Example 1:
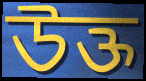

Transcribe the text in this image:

উক্ত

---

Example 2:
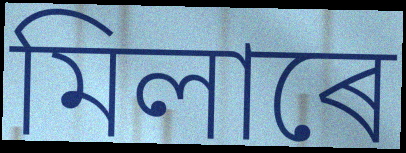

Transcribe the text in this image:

মিলাৰে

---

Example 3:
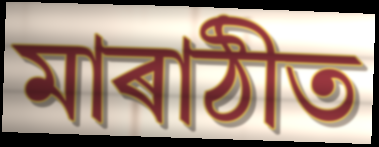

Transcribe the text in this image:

মাৰাঠীত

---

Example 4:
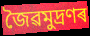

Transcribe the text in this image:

জৈৱমুদ্ৰণৰ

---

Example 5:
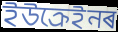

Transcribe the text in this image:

ইউক্ৰেইনৰ